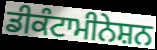
ਡੀਕੰਟਾਮੀਨੇਸ਼ਨ